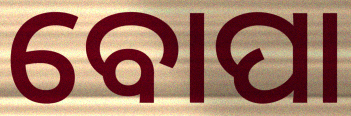
ବୋପା